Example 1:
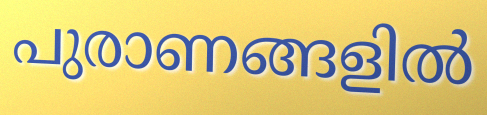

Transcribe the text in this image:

പുരാണങ്ങളിൽ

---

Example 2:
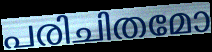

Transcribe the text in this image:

പരിചിതമോ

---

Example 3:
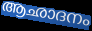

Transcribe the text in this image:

ആഛാദനം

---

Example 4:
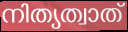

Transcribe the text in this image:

നിത്യത്വാത്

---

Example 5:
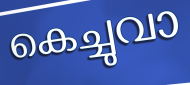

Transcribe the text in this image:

കെച്ചുവാ